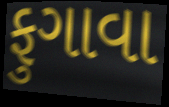
ફુગાવા